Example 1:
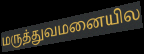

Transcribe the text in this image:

மருத்துவமனையில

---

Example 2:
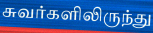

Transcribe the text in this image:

சுவர்களிலிருந்து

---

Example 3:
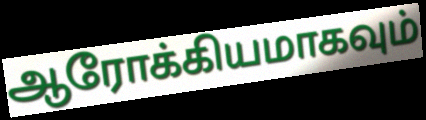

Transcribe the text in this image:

ஆரோக்கியமாகவும்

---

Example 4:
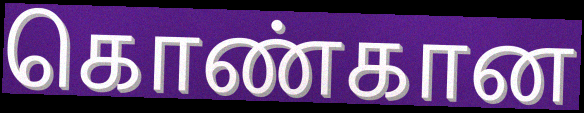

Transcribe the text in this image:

கொண்கான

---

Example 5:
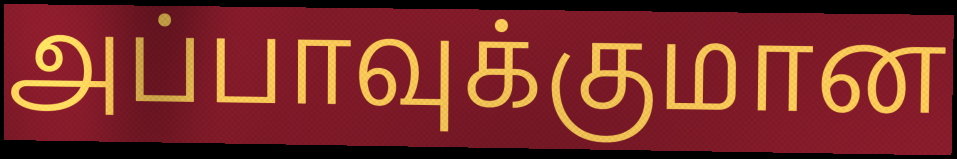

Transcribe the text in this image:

அப்பாவுக்குமான